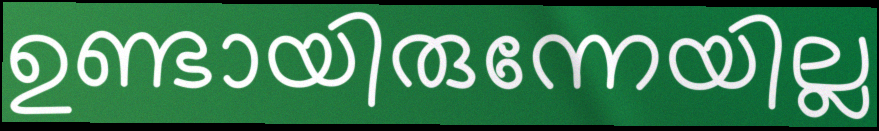
ഉണ്ടായിരുന്നേയില്ല